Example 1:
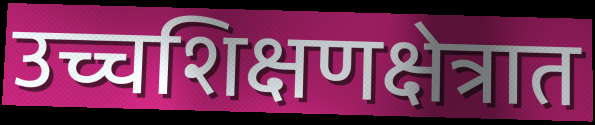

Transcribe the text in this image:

उच्चशिक्षणक्षेत्रात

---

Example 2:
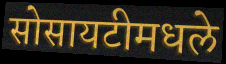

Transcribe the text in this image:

सोसायटीमधले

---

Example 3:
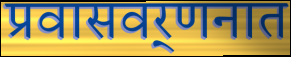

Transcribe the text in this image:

प्रवासवर्णनात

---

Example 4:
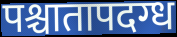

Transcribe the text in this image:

पश्चातापदग्ध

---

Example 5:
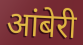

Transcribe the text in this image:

आंबेरी